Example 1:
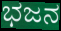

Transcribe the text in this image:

ಭಜನ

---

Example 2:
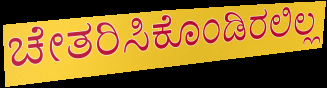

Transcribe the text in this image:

ಚೇತರಿಸಿಕೊಂಡಿರಲಿಲ್ಲ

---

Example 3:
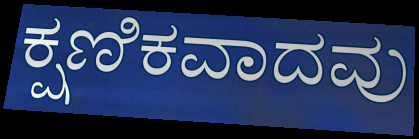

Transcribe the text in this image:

ಕ್ಷಣಿಕವಾದವು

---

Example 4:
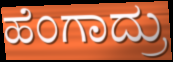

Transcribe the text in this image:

ಹೆಂಗಾದ್ರು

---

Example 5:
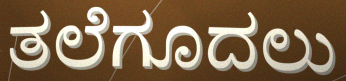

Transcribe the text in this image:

ತಲೆಗೂದಲು